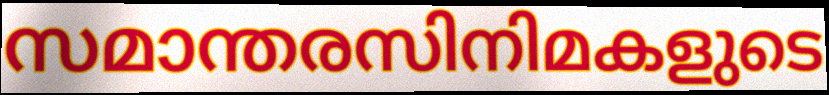
സമാന്തരസിനിമകളുടെ